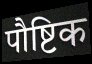
पौष्टिक